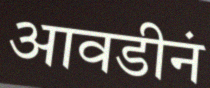
आवडीनं